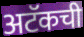
अटॅकची